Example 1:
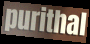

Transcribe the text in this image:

purithal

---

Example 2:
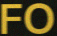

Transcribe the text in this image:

FO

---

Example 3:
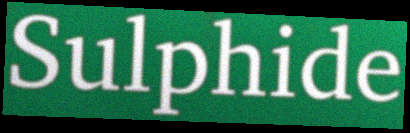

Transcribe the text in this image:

Sulphide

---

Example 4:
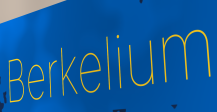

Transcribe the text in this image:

Berkelium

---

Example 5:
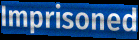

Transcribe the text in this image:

Imprisoned